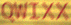
QWIXX